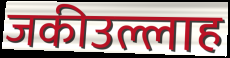
जकीउल्लाह